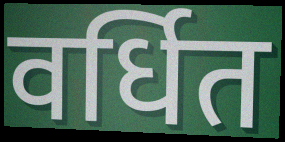
वर्धित